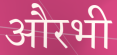
औरभी